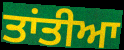
ਤਾਂਤੀਆ